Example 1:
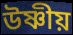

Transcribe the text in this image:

উষ্ণীয়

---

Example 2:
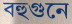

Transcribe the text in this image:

বহুগুনে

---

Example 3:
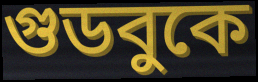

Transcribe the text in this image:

গুডবুকে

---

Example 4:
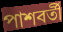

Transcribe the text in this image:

পাশবর্তী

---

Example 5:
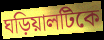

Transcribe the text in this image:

ঘড়িয়ালটিকে